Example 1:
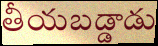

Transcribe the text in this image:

తీయబడ్డాడు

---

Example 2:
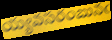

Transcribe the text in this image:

య్యవసరంబునఁ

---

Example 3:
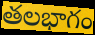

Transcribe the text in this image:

తలభాగం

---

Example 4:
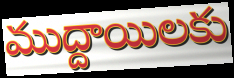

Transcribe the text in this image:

ముద్దాయిలకు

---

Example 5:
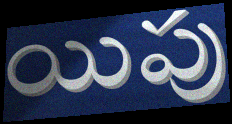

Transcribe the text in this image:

యిపు